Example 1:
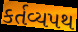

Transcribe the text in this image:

કર્તવ્યપથ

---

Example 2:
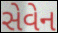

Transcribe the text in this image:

સેવેન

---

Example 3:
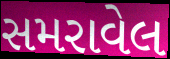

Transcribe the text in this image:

સમરાવેલ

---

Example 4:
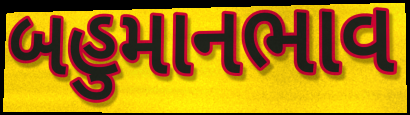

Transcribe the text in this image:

બહુમાનભાવ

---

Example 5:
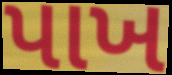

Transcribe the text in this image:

પાખ